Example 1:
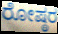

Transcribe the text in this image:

ರೋಷ್ಠರ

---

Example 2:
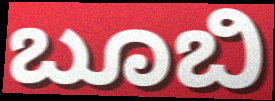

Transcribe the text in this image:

ಬೂಬಿ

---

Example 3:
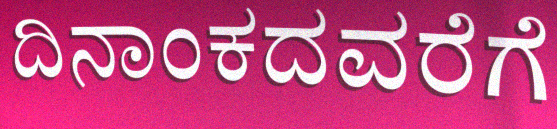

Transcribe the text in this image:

ದಿನಾಂಕದವರೆಗೆ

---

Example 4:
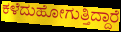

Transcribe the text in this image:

ಕಳೆದುಹೋಗುತ್ತಿದ್ದಾರೆ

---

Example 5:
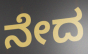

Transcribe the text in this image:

ನೇದ